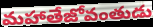
మహాతేజోవంతుడు